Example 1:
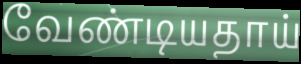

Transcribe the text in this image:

வேண்டியதாய்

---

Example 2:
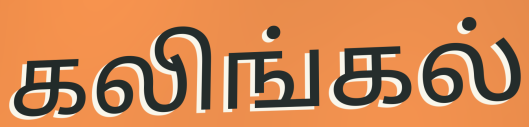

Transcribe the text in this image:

கலிங்கல்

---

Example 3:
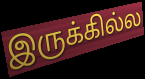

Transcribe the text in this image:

இருக்கில்ல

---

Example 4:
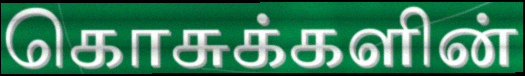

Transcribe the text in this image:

கொசுக்களின்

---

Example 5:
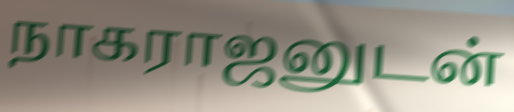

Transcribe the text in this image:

நாகராஜனுடன்